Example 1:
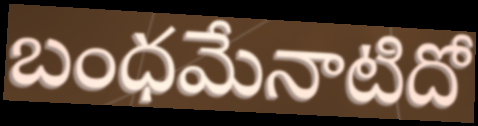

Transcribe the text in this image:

బంధమేనాటిదో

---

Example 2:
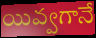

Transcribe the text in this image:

యివ్వగానే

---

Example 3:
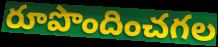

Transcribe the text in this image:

రూపొందించగల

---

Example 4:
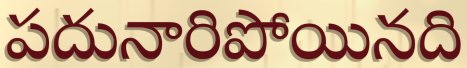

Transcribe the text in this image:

పదునారిపోయినది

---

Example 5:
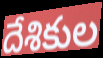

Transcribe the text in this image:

దేశికుల